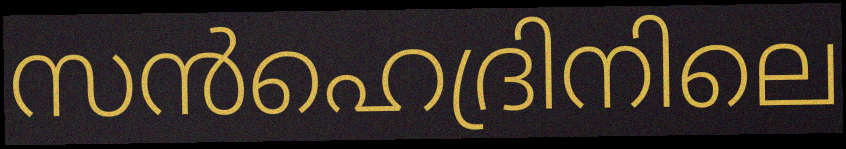
സൻഹെദ്രിനിലെ